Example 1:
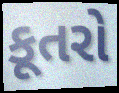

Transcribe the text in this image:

કૂતરો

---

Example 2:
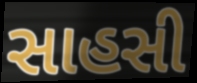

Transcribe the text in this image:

સાહસી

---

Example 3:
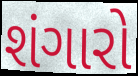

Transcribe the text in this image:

શંગારો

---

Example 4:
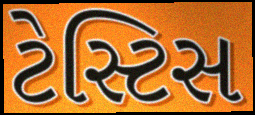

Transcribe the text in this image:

ટેસ્ટિસ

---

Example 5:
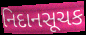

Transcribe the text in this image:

નિદાનસૂચક